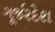
ગૂર્જરદેશ